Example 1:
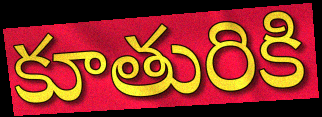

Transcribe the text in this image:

కూతురికి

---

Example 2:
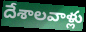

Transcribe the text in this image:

దేశాలవాళ్లు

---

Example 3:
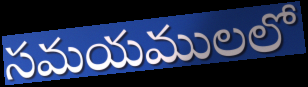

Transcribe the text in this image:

సమయములలో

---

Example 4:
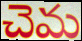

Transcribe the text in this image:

చెమ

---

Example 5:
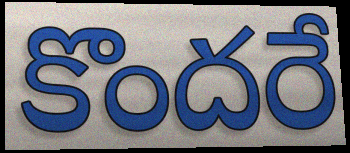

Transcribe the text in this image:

కొందరే